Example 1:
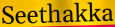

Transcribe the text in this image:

Seethakka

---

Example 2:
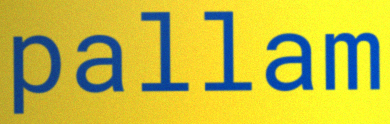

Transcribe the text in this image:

pallam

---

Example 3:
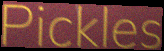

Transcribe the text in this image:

Pickles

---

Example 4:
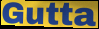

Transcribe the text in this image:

Gutta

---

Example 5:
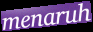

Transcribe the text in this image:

menaruh